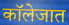
कॉलेजात